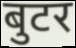
बुटर